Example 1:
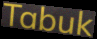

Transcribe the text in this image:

Tabuk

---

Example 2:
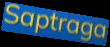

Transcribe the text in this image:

Saptraga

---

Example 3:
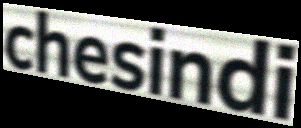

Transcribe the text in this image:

chesindi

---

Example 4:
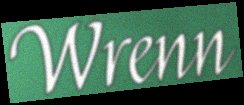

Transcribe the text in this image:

Wrenn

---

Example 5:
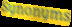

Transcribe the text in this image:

Synonyms